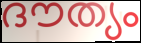
ദൗത്യം